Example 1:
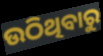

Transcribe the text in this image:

ଉଠିଥିବାରୁ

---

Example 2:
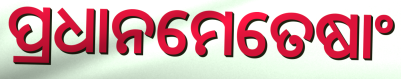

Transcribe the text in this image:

ପ୍ରଧାନମେତେଷାଂ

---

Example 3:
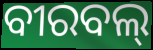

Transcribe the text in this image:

ବୀରବଲ୍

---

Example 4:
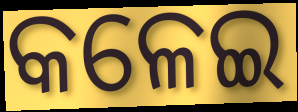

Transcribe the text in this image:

କଳେଇ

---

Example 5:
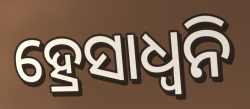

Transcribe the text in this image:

ହ୍ରେସାଧ୍ୱନି